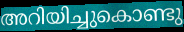
അറിയിച്ചുകൊണ്ടു